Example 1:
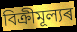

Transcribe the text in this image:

বিক্ৰীমূল্যৰ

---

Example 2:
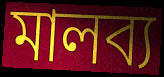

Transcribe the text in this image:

মালব্য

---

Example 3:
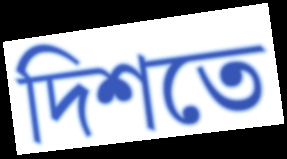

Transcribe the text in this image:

দিশতে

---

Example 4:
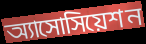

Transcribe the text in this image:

অ্যাসোসিয়েশন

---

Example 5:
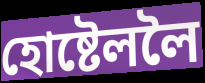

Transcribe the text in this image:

হোষ্টেললৈ